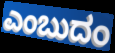
ಎಂಬುದಂ